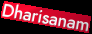
Dharisanam